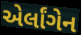
એર્લાંગેન